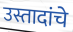
उस्तादांचे